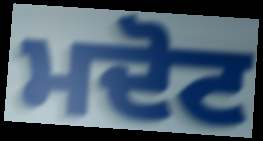
ਮਦੋਟ